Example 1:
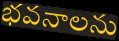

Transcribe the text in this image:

భవనాలను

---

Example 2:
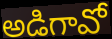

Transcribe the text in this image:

అడిగావో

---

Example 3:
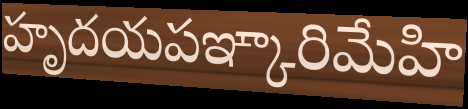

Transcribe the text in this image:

హృదయపఞ్కారిమేహి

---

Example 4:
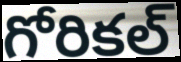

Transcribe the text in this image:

గోరికల్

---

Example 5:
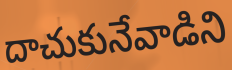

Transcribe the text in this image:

దాచుకునేవాడిని